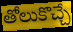
తోలుకొచ్చే